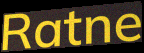
Ratne